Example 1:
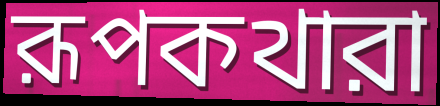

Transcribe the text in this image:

রূপকথারা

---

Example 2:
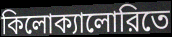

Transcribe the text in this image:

কিলোক্যালোরিতে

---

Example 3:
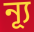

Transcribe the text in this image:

ন্যূ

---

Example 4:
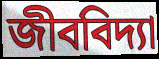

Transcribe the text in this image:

জীববিদ্যা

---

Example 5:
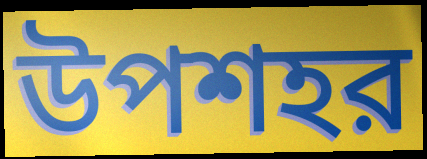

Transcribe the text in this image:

উপশহর